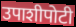
उपाशीपोटी